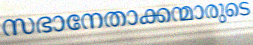
സഭാനേതാക്കന്മാരുടെ